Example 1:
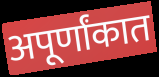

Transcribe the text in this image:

अपूर्णांकात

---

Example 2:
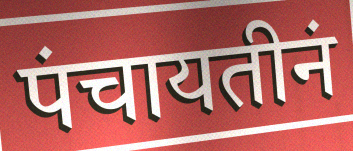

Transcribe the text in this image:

पंचायतीनं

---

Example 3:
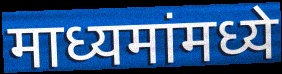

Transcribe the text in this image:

माध्यमांमध्ये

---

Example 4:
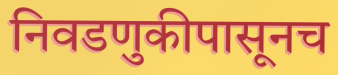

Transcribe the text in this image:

निवडणुकीपासूनच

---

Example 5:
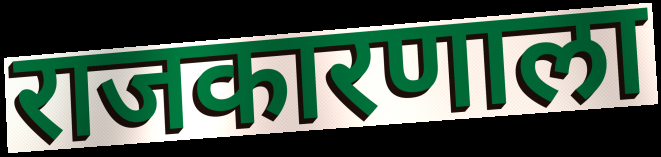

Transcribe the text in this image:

राजकारणाला